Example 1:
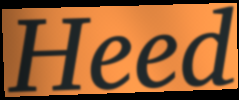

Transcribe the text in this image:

Heed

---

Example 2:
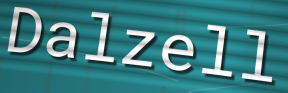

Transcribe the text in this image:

Dalzell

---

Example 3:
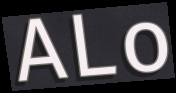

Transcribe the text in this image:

ALo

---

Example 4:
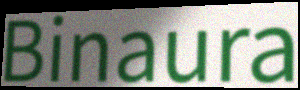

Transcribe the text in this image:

Binaura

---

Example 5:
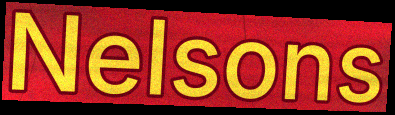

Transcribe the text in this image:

Nelsons